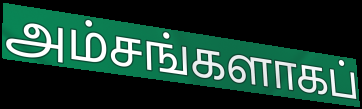
அம்சங்களாகப்